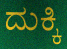
ದುಕ್ಕಿ